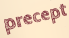
precept